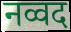
नव्वद